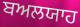
ਬਅਲਯਾਹ